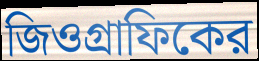
জিওগ্রাফিকের